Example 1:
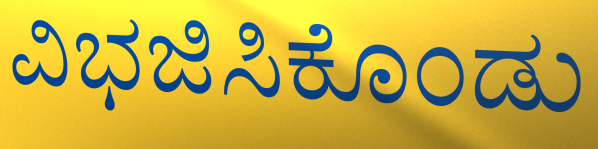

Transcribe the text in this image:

ವಿಭಜಿಸಿಕೊಂಡು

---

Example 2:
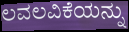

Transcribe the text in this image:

ಲವಲವಿಕೆಯನ್ನು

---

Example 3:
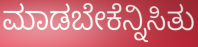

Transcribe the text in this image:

ಮಾಡಬೇಕೆನ್ನಿಸಿತು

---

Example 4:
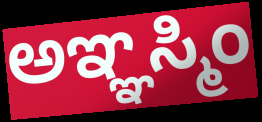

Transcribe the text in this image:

ಅಞ್ಞಸ್ಮಿಂ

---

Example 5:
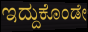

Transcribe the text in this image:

ಇದ್ದುಕೊಂಡೇ